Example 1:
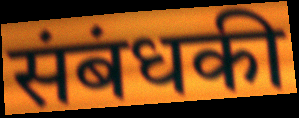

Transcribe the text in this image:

संबंधकी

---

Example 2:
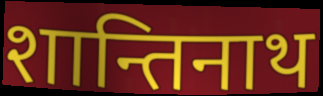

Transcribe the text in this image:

शान्तिनाथ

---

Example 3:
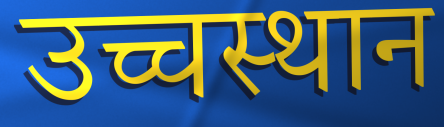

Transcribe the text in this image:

उच्चस्थान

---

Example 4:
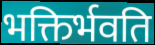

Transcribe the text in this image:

भक्तिर्भवति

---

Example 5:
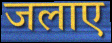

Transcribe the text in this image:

जलाए